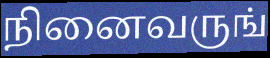
நினைவருங்